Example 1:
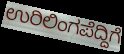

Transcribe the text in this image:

ಉರಿಲಿಂಗಪೆದ್ದಿಗೆ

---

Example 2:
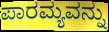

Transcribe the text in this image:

ಪಾರಮ್ಯವನ್ನು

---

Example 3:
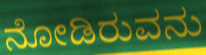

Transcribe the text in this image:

ನೋಡಿರುವನು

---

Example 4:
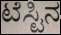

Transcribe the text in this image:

ಟೆಸ್ಟಿನ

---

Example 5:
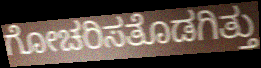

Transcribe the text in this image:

ಗೋಚರಿಸತೊಡಗಿತ್ತು